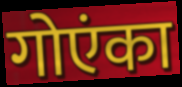
गोएंका